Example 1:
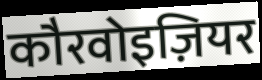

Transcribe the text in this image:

कौरवोइज़ियर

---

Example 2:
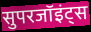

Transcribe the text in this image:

सुपरजॉइंट्स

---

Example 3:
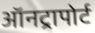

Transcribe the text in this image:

ऑनट्रापोर्ट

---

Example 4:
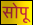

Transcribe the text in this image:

सोपू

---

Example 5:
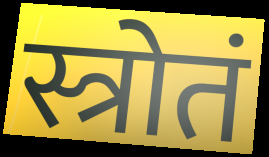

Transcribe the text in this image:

स्त्रोतं